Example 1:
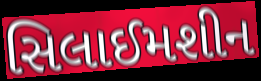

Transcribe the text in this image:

સિલાઈમશીન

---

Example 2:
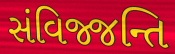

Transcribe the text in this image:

સંવિજ્જન્તિ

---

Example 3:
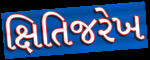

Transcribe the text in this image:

ક્ષિતિજરેખ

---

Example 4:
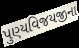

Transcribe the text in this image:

પુણ્યવિજયજીના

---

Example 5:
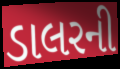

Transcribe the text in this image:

ડાલરની